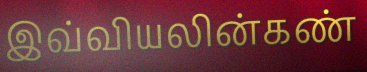
இவ்வியலின்கண்